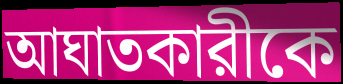
আঘাতকারীকে